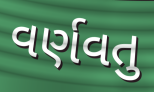
વર્ણવતુ